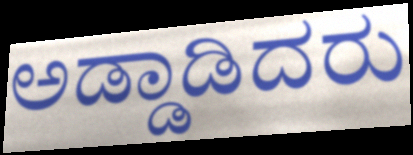
ಅಡ್ಡಾಡಿದರು